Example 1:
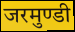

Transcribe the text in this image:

जरमुण्डी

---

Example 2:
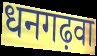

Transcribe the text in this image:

धनगढ़वा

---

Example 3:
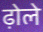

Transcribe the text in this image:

ढ़ोले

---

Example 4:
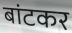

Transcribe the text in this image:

बांटकर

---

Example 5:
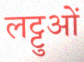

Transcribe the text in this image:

लट्टुओं